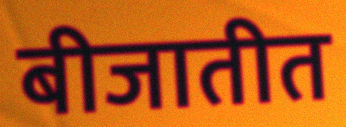
बीजातीत